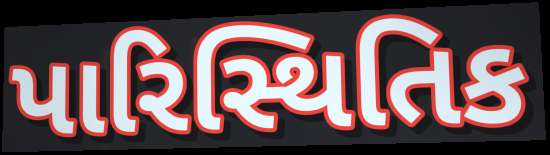
પારિસ્થિતિક